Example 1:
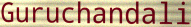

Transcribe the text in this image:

Guruchandali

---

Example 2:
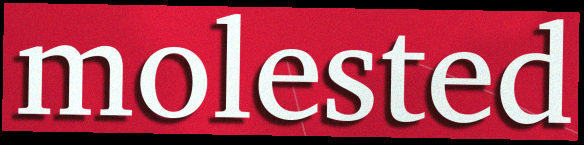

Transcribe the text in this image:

molested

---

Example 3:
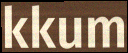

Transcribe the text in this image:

kkum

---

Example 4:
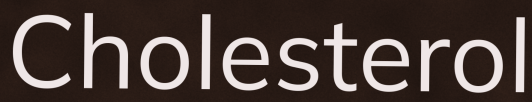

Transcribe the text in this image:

Cholesterol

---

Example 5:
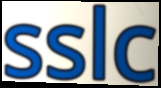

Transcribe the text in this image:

sslc